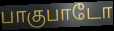
பாகுபாடோ